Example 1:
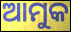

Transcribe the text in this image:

ଆମୁକ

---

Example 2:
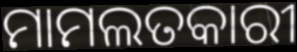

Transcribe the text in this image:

ମାମଲତକାରୀ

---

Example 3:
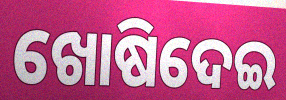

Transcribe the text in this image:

ଖୋଷିଦେଇ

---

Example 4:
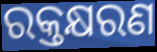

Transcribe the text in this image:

ରକ୍ତକ୍ଷରଣ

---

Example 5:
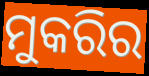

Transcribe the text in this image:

ମୁକରିର